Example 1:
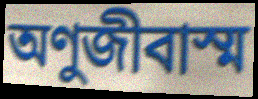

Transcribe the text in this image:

অণুজীবাস্ম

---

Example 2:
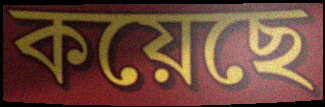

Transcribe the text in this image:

কয়েছে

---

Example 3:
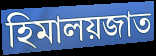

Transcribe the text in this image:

হিমালয়জাত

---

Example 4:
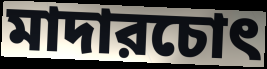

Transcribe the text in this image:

মাদারচোৎ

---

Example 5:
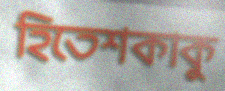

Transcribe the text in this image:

হিতেশকাকু